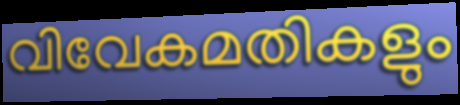
വിവേകമതികളും